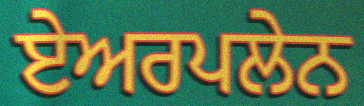
ਏਅਰਪਲੇਨ